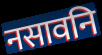
नसावनि